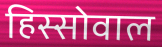
हिस्सोवाल